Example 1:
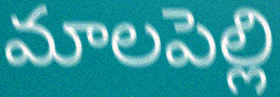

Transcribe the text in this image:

మాలపెల్లి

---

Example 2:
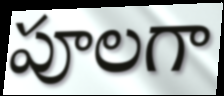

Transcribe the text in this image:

పూలగా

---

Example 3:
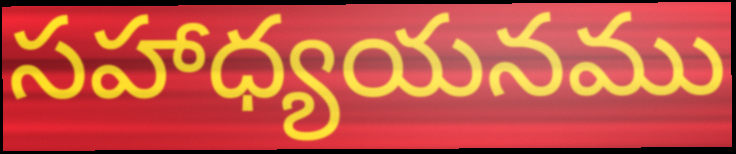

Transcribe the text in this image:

సహాధ్యయనము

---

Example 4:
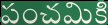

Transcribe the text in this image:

పంచమికి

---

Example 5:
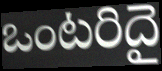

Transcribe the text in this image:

ఒంటరిదై